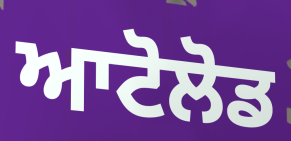
ਆਟੋਲੋਡ